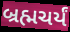
બ્રહ્મચર્યં